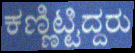
ಕಣ್ಣಿಟ್ಟಿದ್ದರು